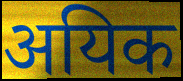
अयिक